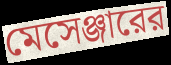
মেসেঞ্জারের